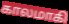
காலமாகி